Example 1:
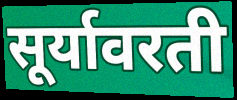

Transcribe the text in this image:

सूर्यावरती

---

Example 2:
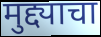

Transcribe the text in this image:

मुद्द्याचा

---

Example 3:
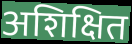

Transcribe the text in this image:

अशिक्षित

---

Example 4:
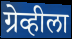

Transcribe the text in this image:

ग्रेव्हीला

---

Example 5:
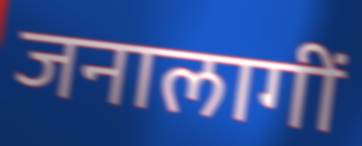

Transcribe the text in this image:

जनालागीं